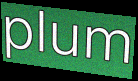
plum